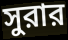
সুরার